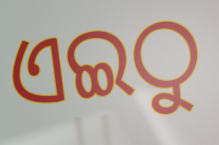
ଏଇଠୁ